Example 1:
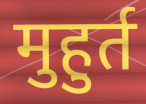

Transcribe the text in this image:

मुहुर्त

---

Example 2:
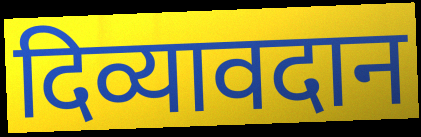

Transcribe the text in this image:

दिव्यावदान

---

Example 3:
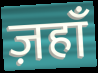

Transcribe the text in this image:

ज़हाँ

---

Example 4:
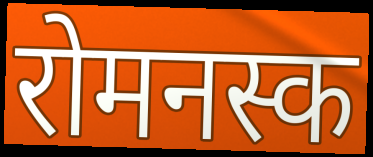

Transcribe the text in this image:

रोमनस्क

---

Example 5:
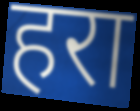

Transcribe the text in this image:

हरा